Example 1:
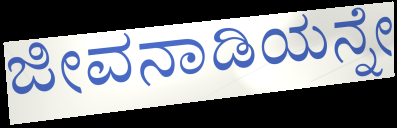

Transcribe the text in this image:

ಜೀವನಾಡಿಯನ್ನೇ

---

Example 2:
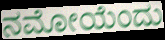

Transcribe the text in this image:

ನಮೋಯೆಂದು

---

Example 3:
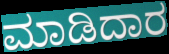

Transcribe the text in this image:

ಮಾಡಿದಾರ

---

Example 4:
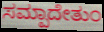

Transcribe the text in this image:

ಸಮ್ಪಾದೇತುಂ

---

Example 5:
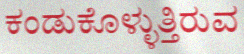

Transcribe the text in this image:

ಕಂಡುಕೊಳ್ಳುತ್ತಿರುವ